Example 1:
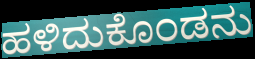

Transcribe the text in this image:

ಹಳಿದುಕೊಂಡನು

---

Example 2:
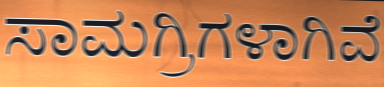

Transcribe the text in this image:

ಸಾಮಗ್ರಿಗಳಾಗಿವೆ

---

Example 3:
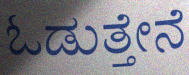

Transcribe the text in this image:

ಓಡುತ್ತೇನೆ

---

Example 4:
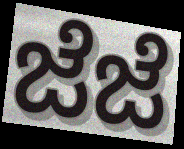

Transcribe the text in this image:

ಜೆಜೆ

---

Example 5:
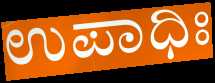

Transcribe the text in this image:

ಉಪಾಧಿಃ